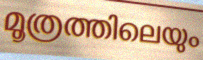
മൂത്രത്തിലെയും